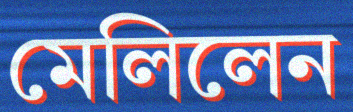
মেলিলেন